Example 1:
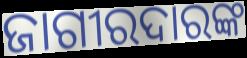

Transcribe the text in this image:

ଜାଗୀରଦାରଙ୍କ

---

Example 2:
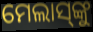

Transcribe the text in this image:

ମେଲାସ୍‌ଙ୍କୁ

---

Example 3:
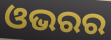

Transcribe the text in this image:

ଓଭରର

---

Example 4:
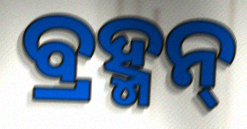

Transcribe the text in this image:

ବ୍ରହ୍ମନ୍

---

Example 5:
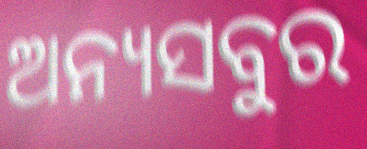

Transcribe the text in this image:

ଅନ୍ୟସବୁର